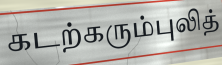
கடற்கரும்புலித்